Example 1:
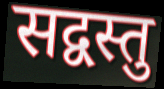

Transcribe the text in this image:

सद्वस्तु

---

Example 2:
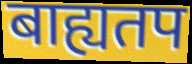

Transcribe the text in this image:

बाह्यतप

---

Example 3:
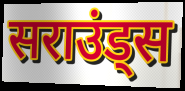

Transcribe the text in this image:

सराउंड्स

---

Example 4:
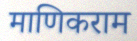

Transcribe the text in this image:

माणिकराम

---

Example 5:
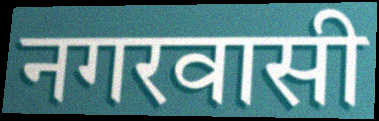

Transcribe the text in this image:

नगरवासी